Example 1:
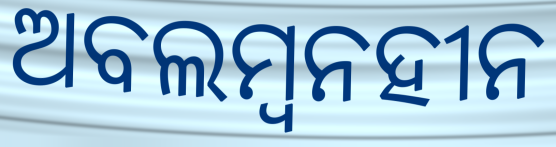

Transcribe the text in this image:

ଅବଲମ୍ବନହୀନ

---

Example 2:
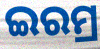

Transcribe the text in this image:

ଇରମ୍ର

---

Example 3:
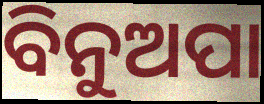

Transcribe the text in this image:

ବିନୁଅପା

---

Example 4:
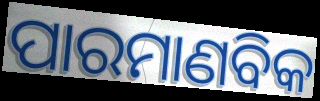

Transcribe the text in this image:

ପାରମାଣବିକ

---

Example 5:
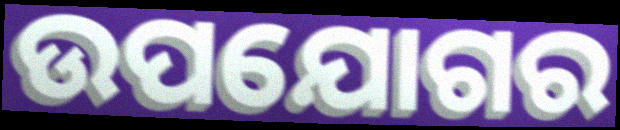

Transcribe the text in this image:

ଉପଯୋଗର